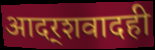
आदर्शवादही